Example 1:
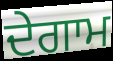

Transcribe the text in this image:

ਦੇਗਾਮ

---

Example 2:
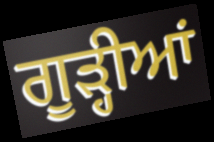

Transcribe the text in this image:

ਗੂੜ੍ਹੀਆਂ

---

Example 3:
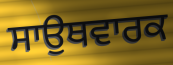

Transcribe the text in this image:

ਸਾਉਥਵਾਰਕ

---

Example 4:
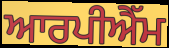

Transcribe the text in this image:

ਆਰਪੀਐੱਮ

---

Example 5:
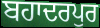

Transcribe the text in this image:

ਬਹਾਦਰਪੁਰ